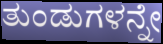
ತುಂಡುಗಳನ್ನೇ